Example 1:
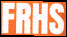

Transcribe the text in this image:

FRHS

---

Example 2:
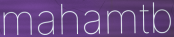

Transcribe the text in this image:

mahamtb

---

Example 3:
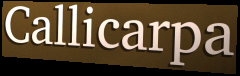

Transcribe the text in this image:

Callicarpa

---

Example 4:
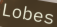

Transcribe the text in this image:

Lobes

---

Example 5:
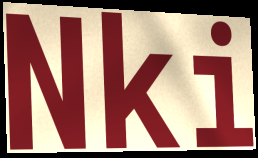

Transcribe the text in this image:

Nki